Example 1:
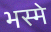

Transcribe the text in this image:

भस्मे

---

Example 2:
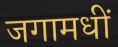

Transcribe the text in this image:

जगामधीं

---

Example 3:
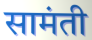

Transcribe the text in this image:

सामंती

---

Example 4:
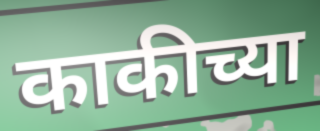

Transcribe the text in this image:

काकीच्या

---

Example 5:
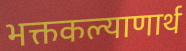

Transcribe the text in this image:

भक्तकल्याणार्थ